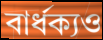
বার্ধক্যও